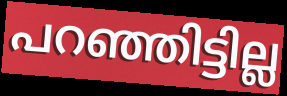
പറഞ്ഞിട്ടില്ല